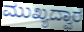
ಮುಖ್ಯದ್ವಾರ